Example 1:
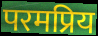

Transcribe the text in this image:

परमप्रिय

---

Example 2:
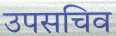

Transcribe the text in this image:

उपसचिव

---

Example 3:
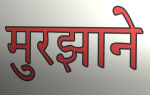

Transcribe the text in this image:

मुरझाने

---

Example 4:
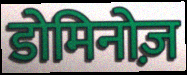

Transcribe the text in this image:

डोमिनोज़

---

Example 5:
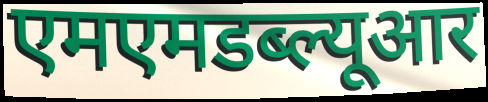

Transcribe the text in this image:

एमएमडब्ल्यूआर